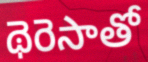
థెరెసాతో